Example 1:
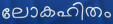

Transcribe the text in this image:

ലോകഹിതം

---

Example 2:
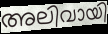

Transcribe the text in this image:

അലിവായി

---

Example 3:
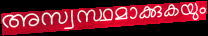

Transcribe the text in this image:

അസ്വസ്ഥമാക്കുകയും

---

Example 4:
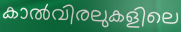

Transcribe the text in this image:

കാൽവിരലുകളിലെ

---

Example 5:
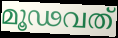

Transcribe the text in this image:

മൂഢവത്